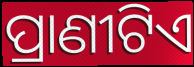
ପ୍ରାଣୀଟିଏ